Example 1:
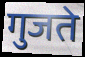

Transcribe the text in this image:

गुजते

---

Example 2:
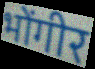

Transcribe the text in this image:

भोंगीर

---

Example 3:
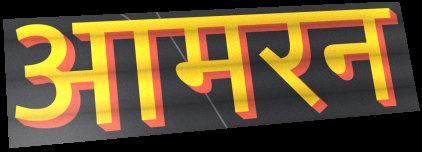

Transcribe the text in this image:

आमरन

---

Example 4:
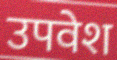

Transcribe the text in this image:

उपवेश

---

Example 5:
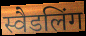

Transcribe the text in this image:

स्वैडलिंग